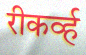
रीकर्व्ह